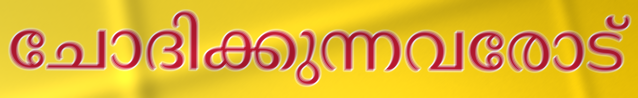
ചോദിക്കുന്നവരോട്